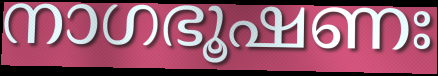
നാഗഭൂഷണഃ